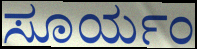
ಸೂರ್ಯಂ